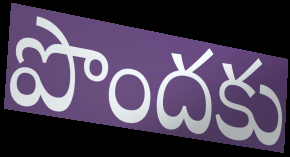
పొందకు